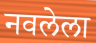
नवलेला